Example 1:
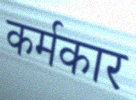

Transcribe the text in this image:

कर्मकार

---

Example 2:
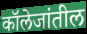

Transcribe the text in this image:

कॉलेजांतील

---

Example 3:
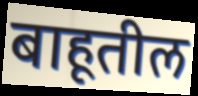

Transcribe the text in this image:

बाहूतील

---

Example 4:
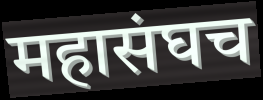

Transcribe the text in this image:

महासंघच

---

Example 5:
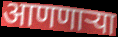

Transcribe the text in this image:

आणणाऱ्या